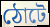
ঠোটে